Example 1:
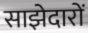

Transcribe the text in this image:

साझेदारों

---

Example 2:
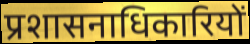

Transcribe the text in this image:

प्रशासनाधिकारियों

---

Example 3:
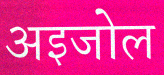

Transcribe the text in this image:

अइजोल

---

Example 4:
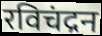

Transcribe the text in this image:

रविचंद्रन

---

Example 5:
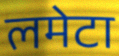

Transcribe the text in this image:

लमेटा